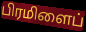
பிரமிளைப்